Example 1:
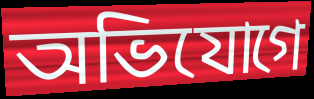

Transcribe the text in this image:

অভিযোগে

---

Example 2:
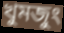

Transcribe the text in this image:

খুমজুং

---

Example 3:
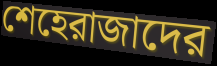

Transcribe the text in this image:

শেহেরাজাদের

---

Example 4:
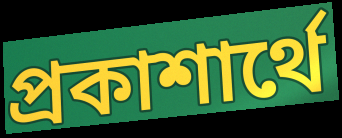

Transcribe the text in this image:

প্রকাশার্থে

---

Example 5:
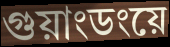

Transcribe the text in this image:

গুয়াংডংয়ে